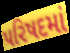
પરિષદમાં